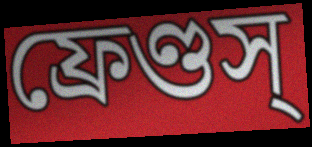
ফ্রেণ্ডস্